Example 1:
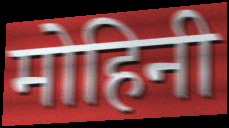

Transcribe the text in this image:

मोहिनी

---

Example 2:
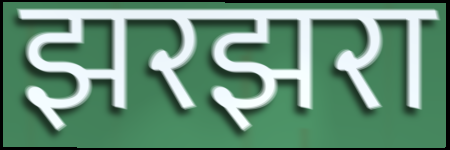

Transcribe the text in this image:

झरझरा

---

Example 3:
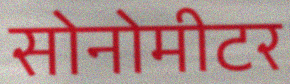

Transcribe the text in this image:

सोनोमीटर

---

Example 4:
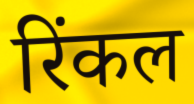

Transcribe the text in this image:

रिंकल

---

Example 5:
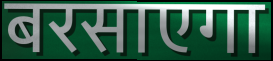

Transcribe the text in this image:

बरसाएगा